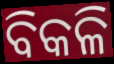
ବିକଳି